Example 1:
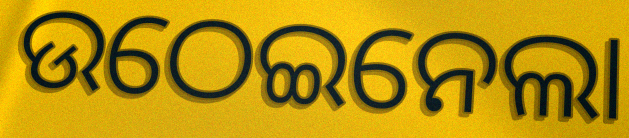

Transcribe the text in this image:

ଉଠେଇନେଲା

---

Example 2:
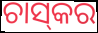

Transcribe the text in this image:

ଚାସ୍‌କର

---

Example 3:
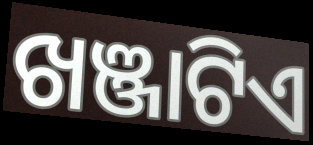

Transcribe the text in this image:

ଖଞ୍ଜାଟିଏ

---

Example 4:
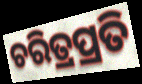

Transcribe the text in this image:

ଚରିତ୍ରପ୍ରତି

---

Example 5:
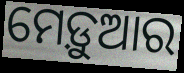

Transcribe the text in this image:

ମେଡ଼ୁଆର